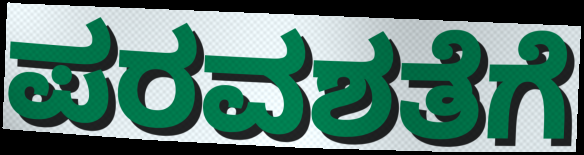
ಪರವಶತೆಗೆ